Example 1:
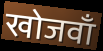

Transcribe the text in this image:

खोजवाँ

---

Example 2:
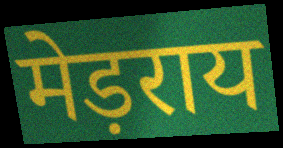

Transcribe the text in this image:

मेड़राय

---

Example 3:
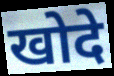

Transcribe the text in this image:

खोदे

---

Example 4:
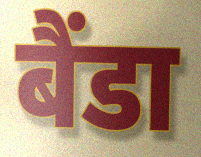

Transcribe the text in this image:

बैंडा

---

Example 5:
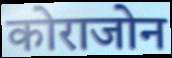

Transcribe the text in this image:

कोराजोन